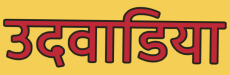
उदवाडिया